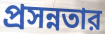
প্রসন্নতার